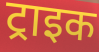
ट्राइक